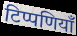
टिप्पणियाँ